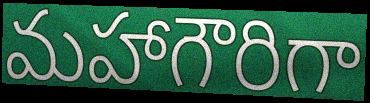
మహాగౌరిగా